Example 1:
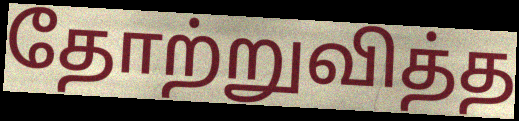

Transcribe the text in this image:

தோற்றுவித்த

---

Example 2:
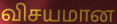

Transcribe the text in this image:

விசயமான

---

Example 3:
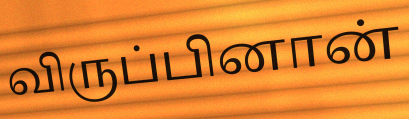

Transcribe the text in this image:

விருப்பினான்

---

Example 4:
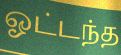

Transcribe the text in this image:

ஓட்டந்த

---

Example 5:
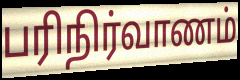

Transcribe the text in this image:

பரிநிர்வாணம்